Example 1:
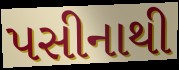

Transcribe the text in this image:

પસીનાથી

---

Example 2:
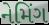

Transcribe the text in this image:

નેમિંગ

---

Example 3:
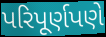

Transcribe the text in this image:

પરિપૂર્ણપણે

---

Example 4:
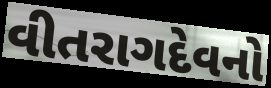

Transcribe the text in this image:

વીતરાગદેવનો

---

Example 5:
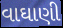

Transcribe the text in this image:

વાઘાણી